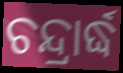
ଚନ୍ଦ୍ରାର୍ଦ୍ଧ